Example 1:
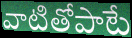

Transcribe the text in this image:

వాటితోపాటే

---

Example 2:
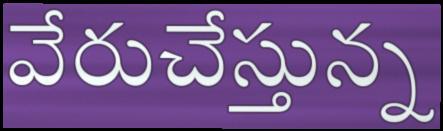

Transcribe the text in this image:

వేరుచేస్తున్న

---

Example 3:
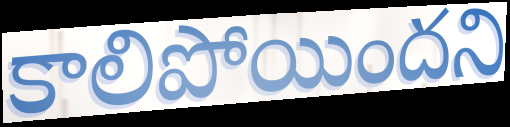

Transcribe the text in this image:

కాలిపోయిందని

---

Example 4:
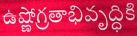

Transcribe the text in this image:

ఉష్ణోగ్రతాభివృద్ధికి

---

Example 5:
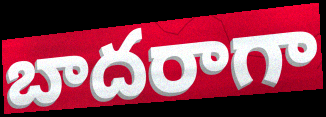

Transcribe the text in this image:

బాదరాగా